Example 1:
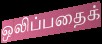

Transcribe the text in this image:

ஒலிப்பதைக்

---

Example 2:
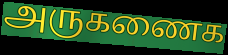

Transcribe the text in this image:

அருகணைக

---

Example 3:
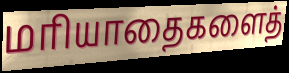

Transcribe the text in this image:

மரியாதைகளைத்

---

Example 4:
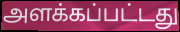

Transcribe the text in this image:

அளக்கப்பட்டது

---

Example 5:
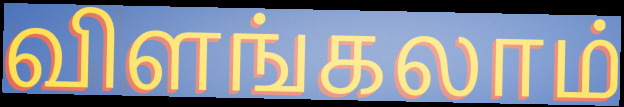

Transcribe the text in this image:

விளங்கலாம்